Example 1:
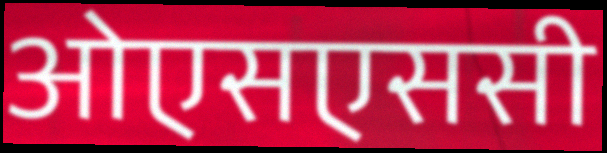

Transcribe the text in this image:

ओएसएससी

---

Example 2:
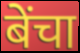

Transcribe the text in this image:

बेंचा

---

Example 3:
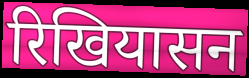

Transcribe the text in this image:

रिखियासन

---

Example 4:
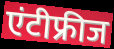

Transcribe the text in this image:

एंटीफ्रीज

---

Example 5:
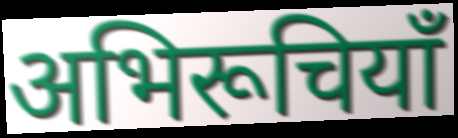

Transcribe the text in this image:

अभिरूचियाँ